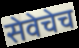
सेवेचेच